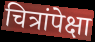
चित्रांपेक्षा